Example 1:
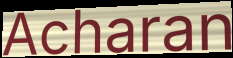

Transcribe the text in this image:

Acharan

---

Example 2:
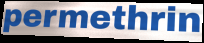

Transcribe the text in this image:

permethrin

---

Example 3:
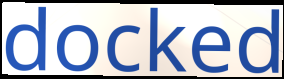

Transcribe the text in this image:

docked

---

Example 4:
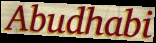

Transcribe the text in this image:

Abudhabi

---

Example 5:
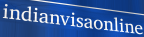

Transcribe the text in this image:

indianvisaonline